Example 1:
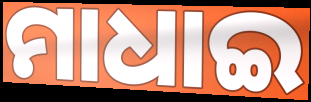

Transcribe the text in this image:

ମାଧାଇ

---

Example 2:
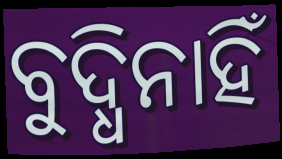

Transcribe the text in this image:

ବୁଦ୍ଧିନାହିଁ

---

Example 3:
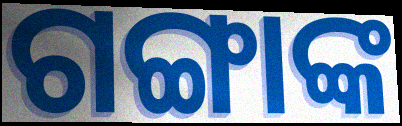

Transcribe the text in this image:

ଗଙ୍ଗାଙ୍କ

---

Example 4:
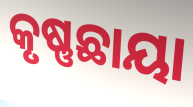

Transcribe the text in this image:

କୃଷ୍ଣଛାୟା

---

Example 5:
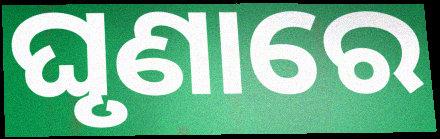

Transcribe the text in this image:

ଘୃଣାରେ